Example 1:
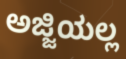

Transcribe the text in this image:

ಅಜ್ಜಿಯಲ್ಲ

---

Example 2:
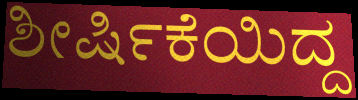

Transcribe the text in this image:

ಶೀರ್ಷಿಕೆಯಿದ್ದ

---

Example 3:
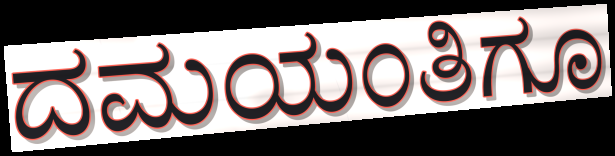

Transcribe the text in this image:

ದಮಯಂತಿಗೂ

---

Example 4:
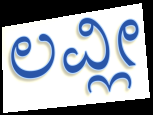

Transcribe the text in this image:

ಲವ್ಲೀ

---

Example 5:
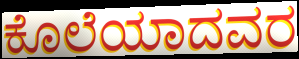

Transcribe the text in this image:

ಕೊಲೆಯಾದವರ